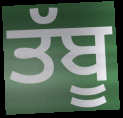
ਤੱਬੂ